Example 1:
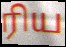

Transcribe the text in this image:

ரிய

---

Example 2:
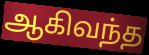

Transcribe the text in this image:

ஆகிவந்த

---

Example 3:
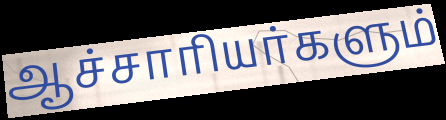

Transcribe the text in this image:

ஆச்சாரியர்களும்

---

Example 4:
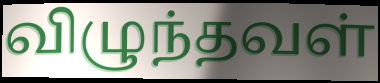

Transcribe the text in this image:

விழுந்தவள்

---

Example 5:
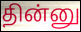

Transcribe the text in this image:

தின்னு